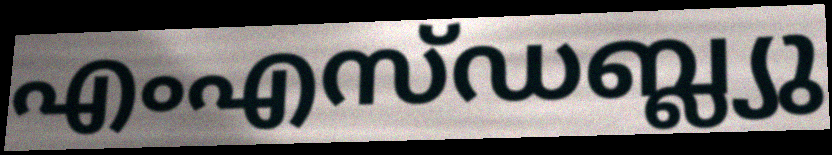
എംഎസ്ഡബ്ല്യു